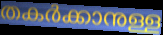
തകർക്കാനുള്ള